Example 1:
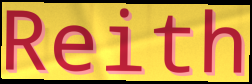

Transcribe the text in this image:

Reith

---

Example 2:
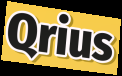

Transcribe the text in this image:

Qrius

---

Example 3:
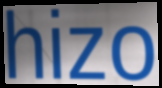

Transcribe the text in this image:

hizo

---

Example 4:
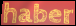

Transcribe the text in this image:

haber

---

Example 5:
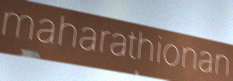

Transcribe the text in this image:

maharathionan